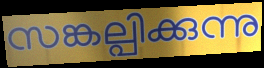
സങ്കല്പിക്കുന്നു